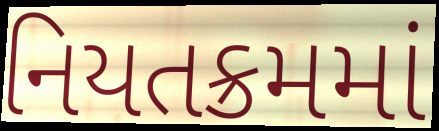
નિયતક્રમમાં